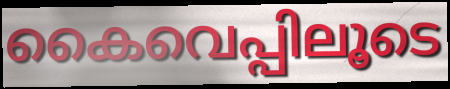
കൈവെപ്പിലൂടെ